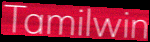
Tamilwin